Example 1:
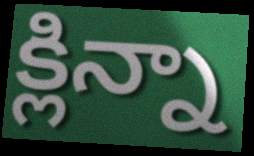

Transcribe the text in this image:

క్లిన్నా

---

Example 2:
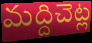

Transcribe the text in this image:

మద్దిచెట్ల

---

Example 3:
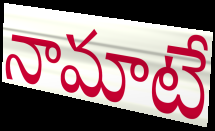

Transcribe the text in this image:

నామాటే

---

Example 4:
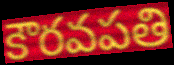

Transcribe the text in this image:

కౌరవపతి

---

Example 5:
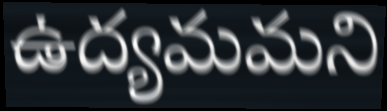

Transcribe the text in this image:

ఉద్యమమని